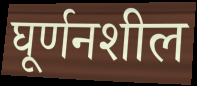
घूर्णनशील